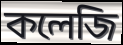
কলেজি